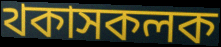
থকাসকলক